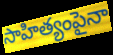
సాహిత్యంపైనా